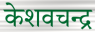
केशवचन्द्र